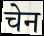
चेन